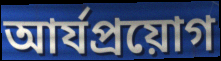
আর্যপ্রয়োগ